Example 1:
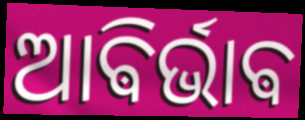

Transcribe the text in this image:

ଆଵିର୍ଭାଵ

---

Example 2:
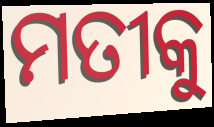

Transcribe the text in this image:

ମତୀକୁ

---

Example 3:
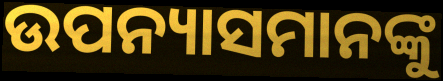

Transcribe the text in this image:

ଉପନ୍ୟାସମାନଙ୍କୁ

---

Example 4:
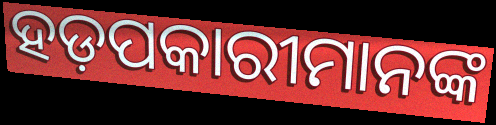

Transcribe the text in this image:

ହଡ଼ପକାରୀମାନଙ୍କ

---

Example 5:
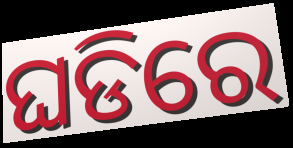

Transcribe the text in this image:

ଘଡିରେ